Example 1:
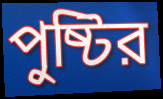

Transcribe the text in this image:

পুষ্টির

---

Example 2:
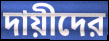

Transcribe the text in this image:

দায়ীদের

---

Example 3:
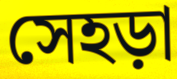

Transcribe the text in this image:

সেহড়া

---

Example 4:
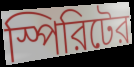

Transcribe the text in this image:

স্পিরিটের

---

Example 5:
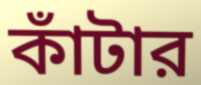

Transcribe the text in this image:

কাঁটার